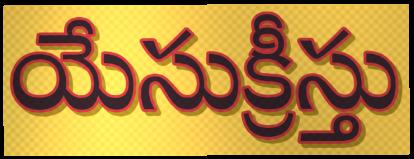
యేసుక్రీస్తు